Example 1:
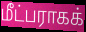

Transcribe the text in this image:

மீட்பராகக்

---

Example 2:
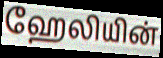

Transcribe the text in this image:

ஹேலியின்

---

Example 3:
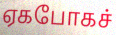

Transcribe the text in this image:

ஏகபோகச்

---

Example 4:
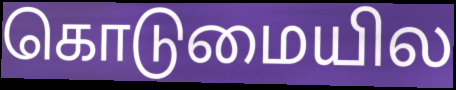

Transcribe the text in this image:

கொடுமையில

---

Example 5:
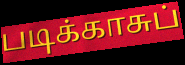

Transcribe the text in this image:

படிக்காசுப்